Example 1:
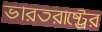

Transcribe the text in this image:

ভারতরাষ্ট্রের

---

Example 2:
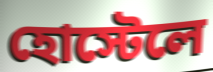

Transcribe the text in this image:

হোস্টেলে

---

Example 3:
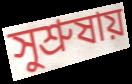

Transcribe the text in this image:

সুশ্রুষায়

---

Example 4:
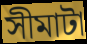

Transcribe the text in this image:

সীমাটা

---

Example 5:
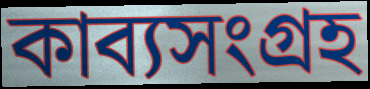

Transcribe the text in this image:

কাব্যসংগ্রহ